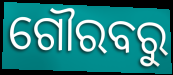
ଗୌରବରୁ